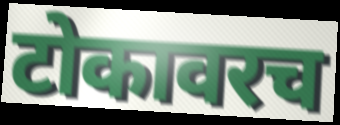
टोकावरच